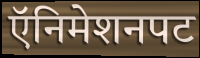
ऍनिमेशनपट